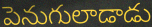
పెనుగులాడాడు